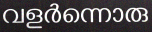
വളർന്നൊരു